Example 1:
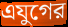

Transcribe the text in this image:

এযুগের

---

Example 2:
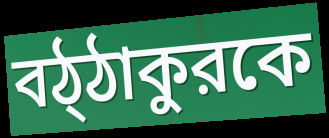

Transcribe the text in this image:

বঠ্ঠাকুরকে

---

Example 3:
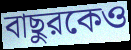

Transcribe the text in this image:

বাছুরকেও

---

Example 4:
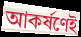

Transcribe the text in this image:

আকর্ষণেই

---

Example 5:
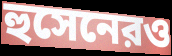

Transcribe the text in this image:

হুসেনেরও